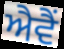
ਐਵੈਂ